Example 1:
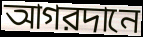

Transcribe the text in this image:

আগরদানে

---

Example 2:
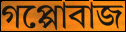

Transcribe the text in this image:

গপ্পোবাজ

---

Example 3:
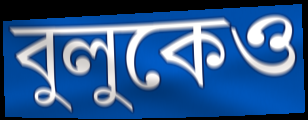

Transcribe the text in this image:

বুলুকেও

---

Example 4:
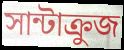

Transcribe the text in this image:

সান্টাক্রুজ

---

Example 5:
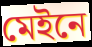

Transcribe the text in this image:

মেইনে